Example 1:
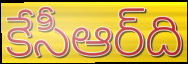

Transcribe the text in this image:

కేసీఆర్‌ది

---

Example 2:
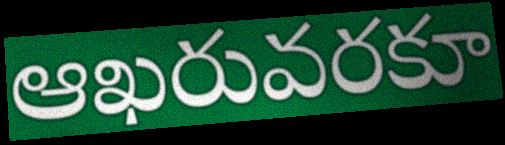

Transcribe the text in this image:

ఆఖరువరకూ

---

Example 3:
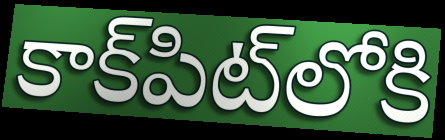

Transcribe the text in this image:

కాక్‌పిట్‌లోకి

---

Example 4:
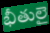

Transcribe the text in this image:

భీతులై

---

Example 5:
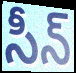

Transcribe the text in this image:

సీన్